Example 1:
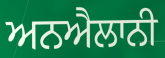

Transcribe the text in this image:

ਅਨਐਲਾਨੀ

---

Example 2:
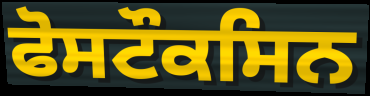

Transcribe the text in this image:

ਫੋਸਟੌਕਸਿਨ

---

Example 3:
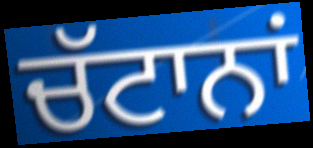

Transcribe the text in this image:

ਚੱਟਾਨਾਂ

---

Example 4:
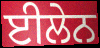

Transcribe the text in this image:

ਈਲੇਨ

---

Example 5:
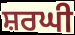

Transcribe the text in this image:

ਸ਼ਰਘੀ